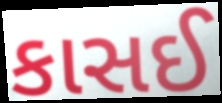
કાસઈ